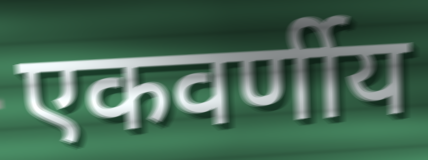
एकवर्णीय